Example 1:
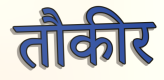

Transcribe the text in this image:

तौकीर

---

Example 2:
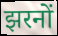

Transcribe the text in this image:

झरनों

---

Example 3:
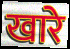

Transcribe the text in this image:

खारे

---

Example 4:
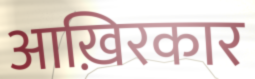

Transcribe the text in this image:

आख़िरकार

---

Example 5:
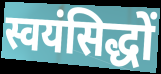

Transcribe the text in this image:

स्वयंसिद्धों